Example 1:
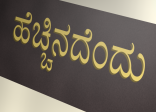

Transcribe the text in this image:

ಹೆಚ್ಚಿನದೆಂದು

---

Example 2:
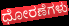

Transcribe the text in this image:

ಧೋರಣೆಗಳು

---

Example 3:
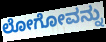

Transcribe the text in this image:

ಲೋಗೋವನ್ನು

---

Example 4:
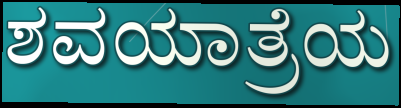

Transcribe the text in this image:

ಶವಯಾತ್ರೆಯ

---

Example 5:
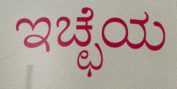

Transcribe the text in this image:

ಇಚ್ಛೆಯ